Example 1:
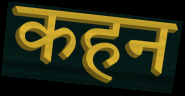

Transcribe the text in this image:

कहन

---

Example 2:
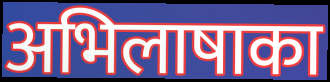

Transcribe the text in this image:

अभिलाषाका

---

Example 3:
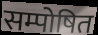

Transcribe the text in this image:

सम्पोषित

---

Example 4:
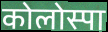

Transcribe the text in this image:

कोलोस्पा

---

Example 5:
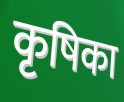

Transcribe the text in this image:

कृषिका